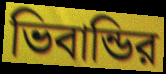
ভিবান্ডির